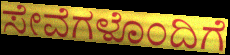
ಸೇವೆಗಳೊಂದಿಗೆ